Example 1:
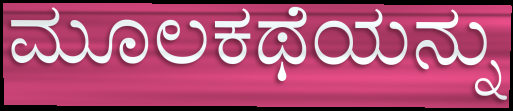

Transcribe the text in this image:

ಮೂಲಕಥೆಯನ್ನು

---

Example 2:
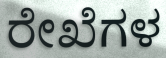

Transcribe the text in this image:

ರೇಖೆಗಳ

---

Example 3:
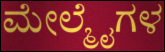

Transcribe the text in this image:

ಮೇಲ್ಮೈಗಳ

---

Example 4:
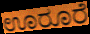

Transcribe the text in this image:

ಊರೂರೆ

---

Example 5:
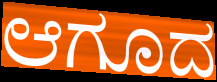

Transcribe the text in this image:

ಆಗೂದ